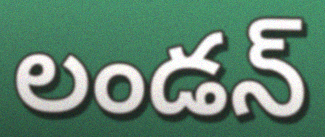
లండన్